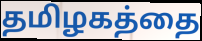
தமிழகத்தை